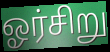
ஓர்சிறு